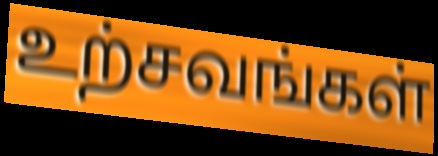
உற்சவங்கள்